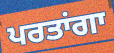
ਪਰਤਾਂਗਾ